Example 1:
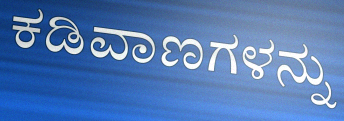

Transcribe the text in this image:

ಕಡಿವಾಣಗಳನ್ನು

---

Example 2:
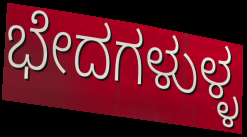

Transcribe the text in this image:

ಭೇದಗಳುಳ್ಳ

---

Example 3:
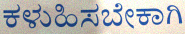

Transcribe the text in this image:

ಕಳುಹಿಸಬೇಕಾಗಿ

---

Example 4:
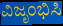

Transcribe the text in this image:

ವಿಜೃಂಭಿಸಿ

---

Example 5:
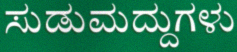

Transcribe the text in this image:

ಸುಡುಮದ್ದುಗಳು